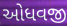
ઓધવજી